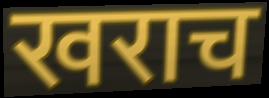
खराच